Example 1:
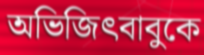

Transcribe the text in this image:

অভিজিৎবাবুকে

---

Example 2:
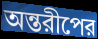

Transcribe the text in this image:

অন্তরীপের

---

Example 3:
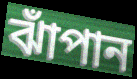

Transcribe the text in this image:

ঝাঁপান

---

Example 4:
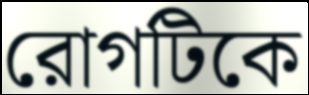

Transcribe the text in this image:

রোগটিকে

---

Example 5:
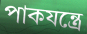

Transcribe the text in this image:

পাকযন্ত্রে